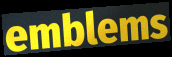
emblems